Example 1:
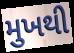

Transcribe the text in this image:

મુખથી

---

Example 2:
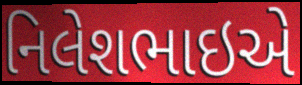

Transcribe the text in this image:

નિલેશભાઇએ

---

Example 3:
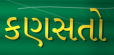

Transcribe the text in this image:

કણસતો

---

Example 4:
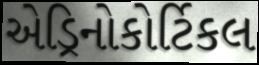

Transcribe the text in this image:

એડ્રિનોકોર્ટિકલ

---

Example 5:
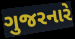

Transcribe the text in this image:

ગુજરનારે